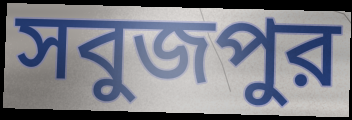
সবুজপুর